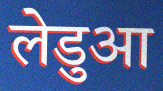
लेडुआ